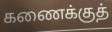
கணைக்குத்